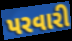
પરવારી